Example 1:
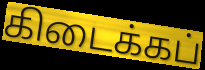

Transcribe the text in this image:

கிடைக்கப்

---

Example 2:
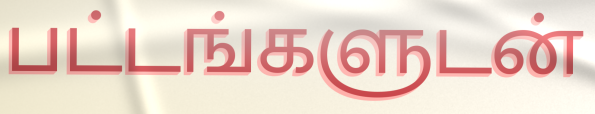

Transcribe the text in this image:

பட்டங்களுடன்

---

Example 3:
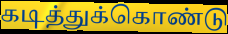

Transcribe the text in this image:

கடித்துக்கொண்டு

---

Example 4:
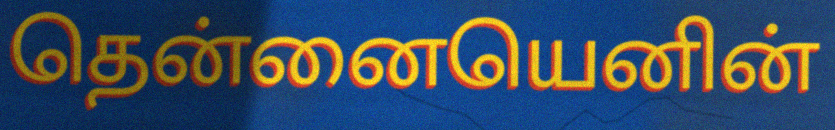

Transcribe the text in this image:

தென்னையெனின்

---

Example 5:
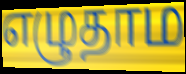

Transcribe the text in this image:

எழுதாம